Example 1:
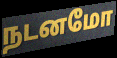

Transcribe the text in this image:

நடனமோ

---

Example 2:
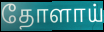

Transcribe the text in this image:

தோளாய்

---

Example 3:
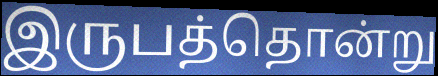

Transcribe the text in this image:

இருபத்தொன்று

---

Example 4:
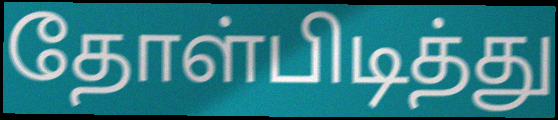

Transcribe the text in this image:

தோள்பிடித்து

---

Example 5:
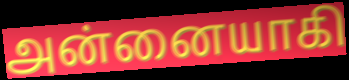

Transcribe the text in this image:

அன்னையாகி